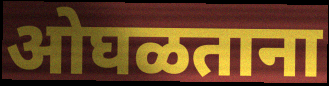
ओघळताना